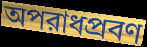
অপরাধপ্রবণ